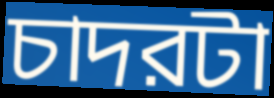
চাদরটা